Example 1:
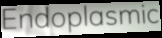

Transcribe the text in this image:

Endoplasmic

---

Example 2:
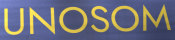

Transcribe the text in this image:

UNOSOM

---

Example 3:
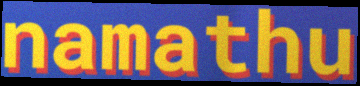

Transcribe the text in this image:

namathu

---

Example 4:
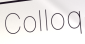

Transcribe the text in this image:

Colloq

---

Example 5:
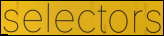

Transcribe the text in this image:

selectors